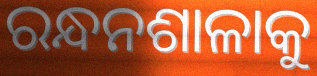
ରନ୍ଧନଶାଳାକୁ